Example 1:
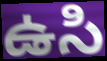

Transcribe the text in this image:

ఉసి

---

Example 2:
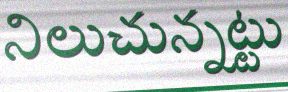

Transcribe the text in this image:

నిలుచున్నట్టు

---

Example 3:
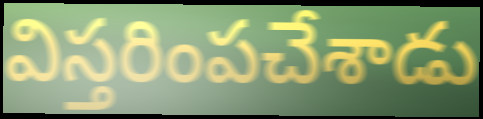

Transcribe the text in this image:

విస్తరింపచేశాడు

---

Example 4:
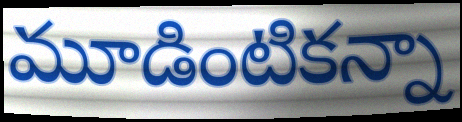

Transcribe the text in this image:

మూడింటికన్నా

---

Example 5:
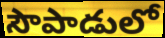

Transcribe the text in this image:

సౌపాడులో